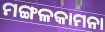
ମଙ୍ଗଳକାମନା